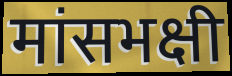
मांसभक्षी